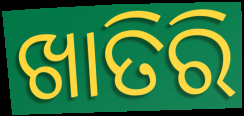
ଖାତିରି